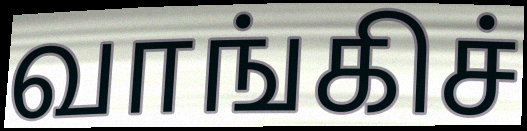
வாங்கிச்